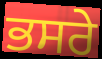
ਭਸਰੇ